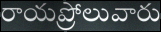
రాయప్రోలువారు